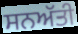
ਸਨਅੱਤੀ